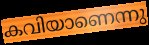
കവിയാണെന്നു